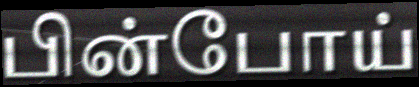
பின்போய்